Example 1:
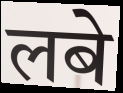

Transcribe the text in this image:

लबे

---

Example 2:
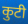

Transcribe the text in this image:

कुटी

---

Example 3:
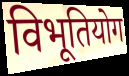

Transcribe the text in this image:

विभूतियोग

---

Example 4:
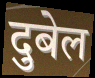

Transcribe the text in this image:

दुबेल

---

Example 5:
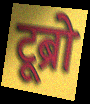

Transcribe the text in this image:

टूब्रो